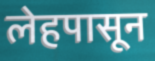
लेहपासून